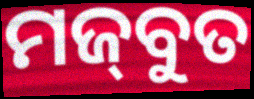
ମଜ୍‌ବୁତ